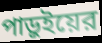
পাড়ুইয়ের